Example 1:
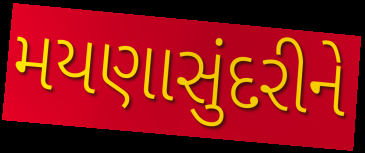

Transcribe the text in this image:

મયણાસુંદરીને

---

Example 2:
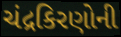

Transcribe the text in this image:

ચંદ્રકિરણોની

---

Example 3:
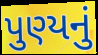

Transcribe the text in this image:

પુણ્યનું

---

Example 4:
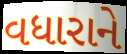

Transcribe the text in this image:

વધારાને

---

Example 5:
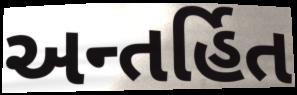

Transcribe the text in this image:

અન્તર્હિત